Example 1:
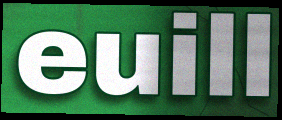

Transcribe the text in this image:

euill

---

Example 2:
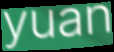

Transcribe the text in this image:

yuan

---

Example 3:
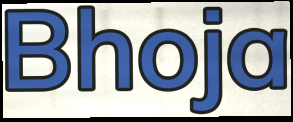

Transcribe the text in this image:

Bhoja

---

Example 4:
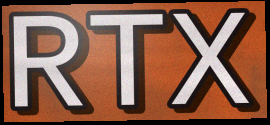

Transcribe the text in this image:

RTX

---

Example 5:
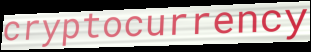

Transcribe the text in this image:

cryptocurrency